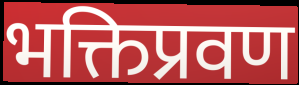
भक्तिप्रवण